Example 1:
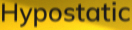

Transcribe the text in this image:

Hypostatic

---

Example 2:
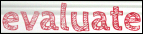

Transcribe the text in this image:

evaluate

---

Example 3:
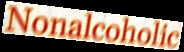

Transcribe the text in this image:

Nonalcoholic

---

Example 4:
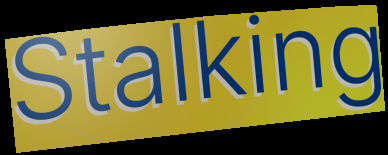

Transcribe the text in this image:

Stalking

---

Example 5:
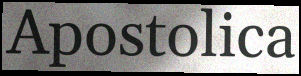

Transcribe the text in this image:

Apostolica